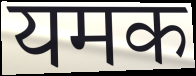
यमक